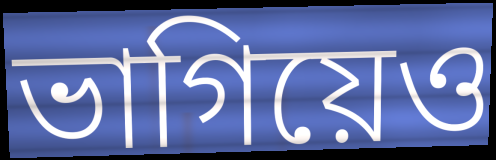
ভাগিয়েও